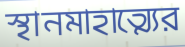
স্থানমাহাত্ম্যের